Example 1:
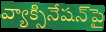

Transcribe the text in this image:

వ్యాక్సినేషన్‌పై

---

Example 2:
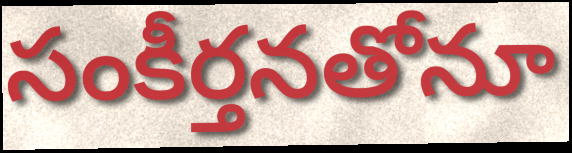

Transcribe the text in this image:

సంకీర్తనతోనూ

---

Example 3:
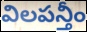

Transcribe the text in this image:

విలపన్తీం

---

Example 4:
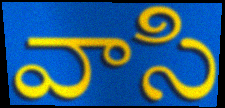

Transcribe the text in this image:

వాసి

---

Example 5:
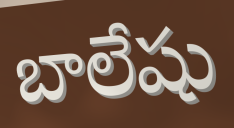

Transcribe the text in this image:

బాలేషు